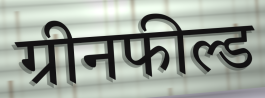
ग्रीनफील्‍ड